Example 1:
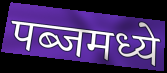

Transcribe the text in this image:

पब्जमध्ये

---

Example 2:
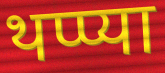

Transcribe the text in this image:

थप्प्या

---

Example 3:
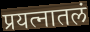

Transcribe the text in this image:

प्रयत्नातलं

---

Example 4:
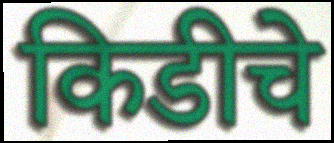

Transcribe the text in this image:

किडीचे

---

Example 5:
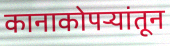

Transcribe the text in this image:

कानाकोपर्‍यांतून